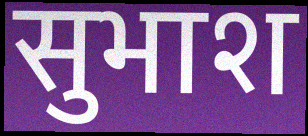
सुभाश